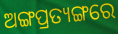
ଅଙ୍ଗପ୍ରତ୍ୟଙ୍ଗରେ